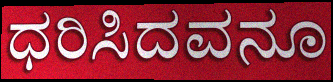
ಧರಿಸಿದವನೂ